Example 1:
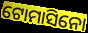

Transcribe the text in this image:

ଟୋମାସିନୋ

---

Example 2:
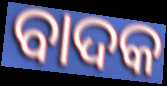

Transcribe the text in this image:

ବାଦକ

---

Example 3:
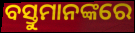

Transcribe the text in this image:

ବସ୍ତୁମାନଙ୍କରେ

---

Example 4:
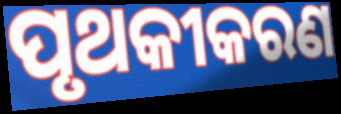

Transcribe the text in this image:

ପୃଥକୀକରଣ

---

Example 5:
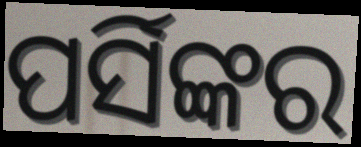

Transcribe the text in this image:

ପର୍ସିଙ୍କର